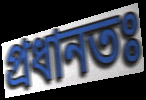
প্রধানতঃ